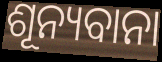
ଶୂନ୍ୟବାନା